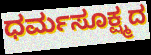
ಧರ್ಮಸೂಕ್ಷ್ಮದ